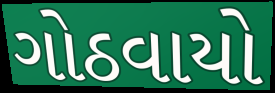
ગોઠવાયો